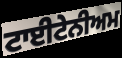
ਟਾਈਟੇਨੀਅਮ